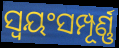
ସ୍ୱୟଂସମ୍ପୂର୍ଣ୍ଣ